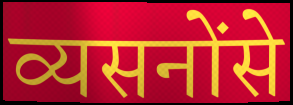
व्यसनोंसे